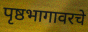
पृष्ठभागावरचे